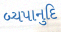
બ્યપાનુદિ